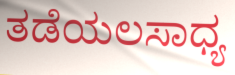
ತಡೆಯಲಸಾಧ್ಯ